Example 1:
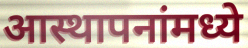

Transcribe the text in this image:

आस्थापनांमध्ये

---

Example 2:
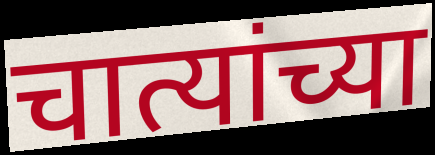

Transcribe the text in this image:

चात्यांच्या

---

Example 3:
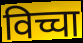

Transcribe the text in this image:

विच्चा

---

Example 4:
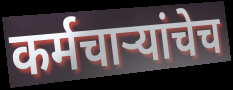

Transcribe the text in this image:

कर्मचाऱ्यांचेच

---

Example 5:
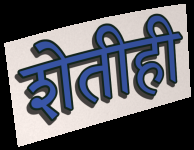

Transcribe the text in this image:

शेतीही